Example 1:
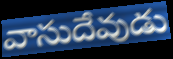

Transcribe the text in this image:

వాసుదేవుడు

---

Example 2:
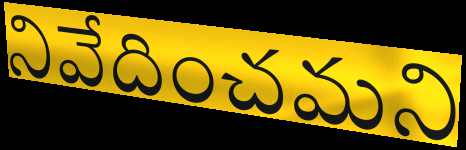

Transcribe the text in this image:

నివేదించమని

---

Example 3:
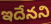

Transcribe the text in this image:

ఇదేనని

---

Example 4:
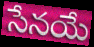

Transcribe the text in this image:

సేనయే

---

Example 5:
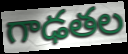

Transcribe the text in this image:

గాఢతల